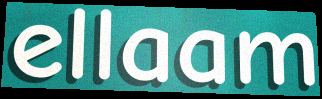
ellaam